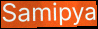
Samipya